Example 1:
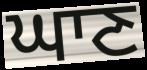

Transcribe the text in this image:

ਘਾਣ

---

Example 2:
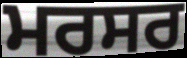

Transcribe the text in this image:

ਮਰਸਰ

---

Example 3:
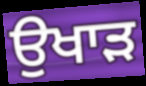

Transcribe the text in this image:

ਉਖਾੜ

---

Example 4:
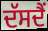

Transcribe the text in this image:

ਦੱਸਦੈਂ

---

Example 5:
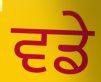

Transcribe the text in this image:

ਵਡੇ